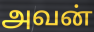
அவன்